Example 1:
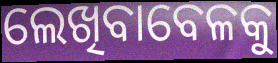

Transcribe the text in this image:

ଲେଖିବାବେଳକୁ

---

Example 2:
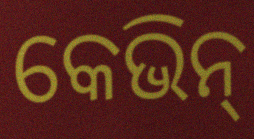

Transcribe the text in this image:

କେଭିନ୍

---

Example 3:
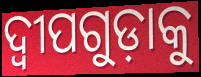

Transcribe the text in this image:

ଦ୍ୱୀପଗୁଡ଼ାକୁ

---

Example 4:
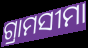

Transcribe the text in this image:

ଗ୍ରାମସୀମା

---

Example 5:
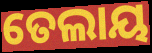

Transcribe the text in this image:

ତେଲାୟ